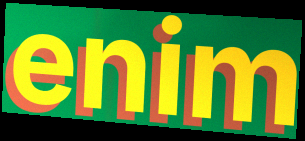
enim